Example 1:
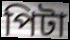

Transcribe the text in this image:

পিটা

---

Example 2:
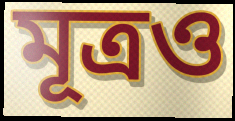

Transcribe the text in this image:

মূত্রও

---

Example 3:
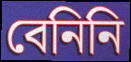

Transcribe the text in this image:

বেনিনি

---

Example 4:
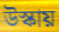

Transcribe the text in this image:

উস্কায়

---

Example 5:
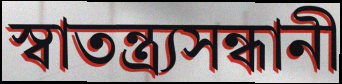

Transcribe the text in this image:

স্বাতন্ত্র্যসন্ধানী